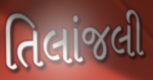
તિલાંજલી